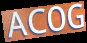
ACOG